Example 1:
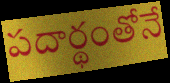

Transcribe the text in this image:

పదార్థంతోనే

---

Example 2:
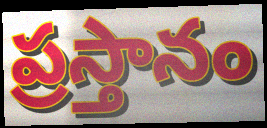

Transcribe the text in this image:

ప్రస్తానం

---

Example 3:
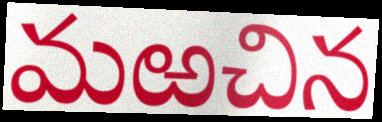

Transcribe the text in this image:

మఱచిన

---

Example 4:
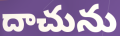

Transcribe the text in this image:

దాచును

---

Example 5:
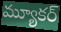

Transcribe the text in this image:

మ్యూకర్